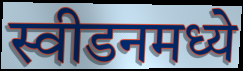
स्वीडनमध्ये